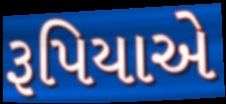
રૂપિયાએ